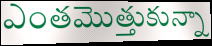
ఎంతమొత్తుకున్నా